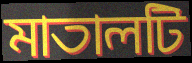
মাতালটি